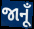
જાનૂઁ